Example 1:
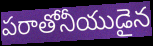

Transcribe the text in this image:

పరాతోనీయుడైన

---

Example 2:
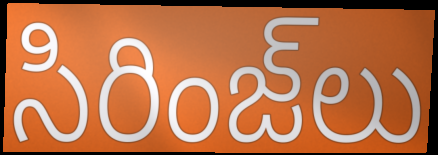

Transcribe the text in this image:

సిరింజ్‌లు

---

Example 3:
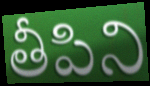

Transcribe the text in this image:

తీపిని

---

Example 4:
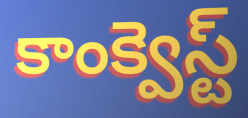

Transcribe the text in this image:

కాంక్వెస్ట్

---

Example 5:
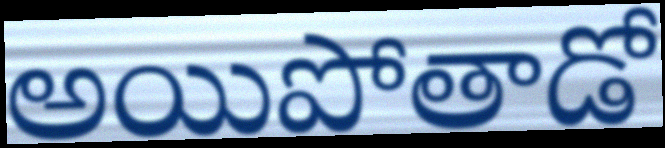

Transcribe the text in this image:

అయిపోతాడో